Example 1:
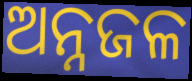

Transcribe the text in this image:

ଅନ୍ନଜଳ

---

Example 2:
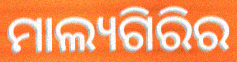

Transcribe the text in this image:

ମାଲ୍ୟଗିରିର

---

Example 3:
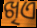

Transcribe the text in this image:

ଖିଏ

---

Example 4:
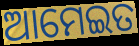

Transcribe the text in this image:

ଆମେଇତ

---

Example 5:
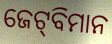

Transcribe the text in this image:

ଜେଟ୍‌ବିମାନ